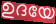
ഉദയേ